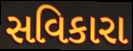
સવિકારા